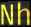
Nh